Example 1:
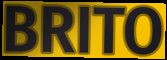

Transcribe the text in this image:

BRITO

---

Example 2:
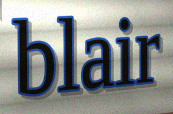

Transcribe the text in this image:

blair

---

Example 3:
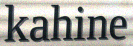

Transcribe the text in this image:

kahine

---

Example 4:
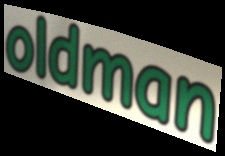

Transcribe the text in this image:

oldman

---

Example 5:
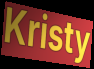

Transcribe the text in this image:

Kristy